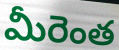
మీరెంత